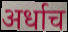
अर्धाच